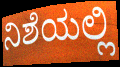
ನಿಶೆಯಲ್ಲಿ